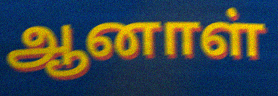
ஆனாள்